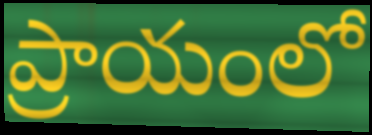
ప్రాయంలో